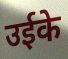
उईके